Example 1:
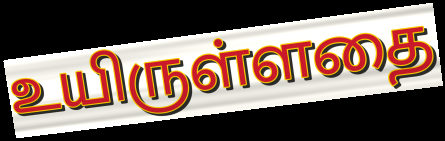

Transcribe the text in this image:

உயிருள்ளதை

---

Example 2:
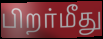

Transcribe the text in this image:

பிறர்மீது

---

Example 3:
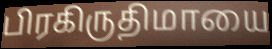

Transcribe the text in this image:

பிரகிருதிமாயை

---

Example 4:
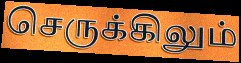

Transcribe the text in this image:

செருக்கிலும்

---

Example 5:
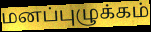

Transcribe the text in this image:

மனப்புழுக்கம்